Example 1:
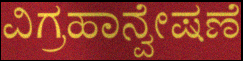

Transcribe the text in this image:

ವಿಗ್ರಹಾನ್ವೇಷಣೆ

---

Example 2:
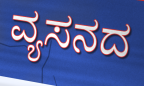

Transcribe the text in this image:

ವ್ಯಸನದ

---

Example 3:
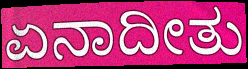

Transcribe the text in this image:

ಏನಾದೀತು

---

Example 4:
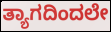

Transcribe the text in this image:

ತ್ಯಾಗದಿಂದಲೇ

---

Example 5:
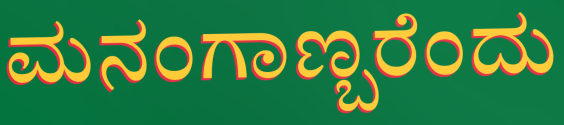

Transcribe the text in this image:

ಮನಂಗಾಣ್ಬರೆಂದು